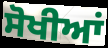
ਸੋਖੀਆਂ